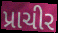
પ્રાચીર